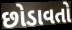
છોડાવતો